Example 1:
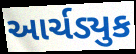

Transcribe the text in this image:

આર્ચડ્યુક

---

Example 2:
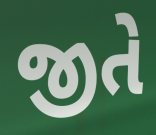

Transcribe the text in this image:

જીતે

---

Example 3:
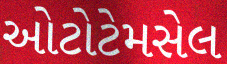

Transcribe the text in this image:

ઓટોટેમસેલ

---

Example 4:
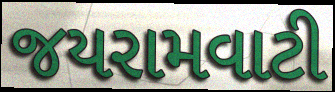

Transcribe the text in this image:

જયરામવાટી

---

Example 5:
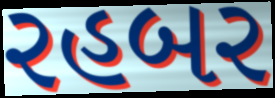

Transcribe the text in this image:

રહબર